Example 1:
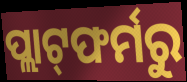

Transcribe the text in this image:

ପ୍ଲାଟ୍‌ଫର୍ମରୁ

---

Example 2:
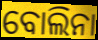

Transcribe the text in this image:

ବୋଲିନା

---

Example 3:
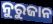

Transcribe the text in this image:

ନୁରୁଜାନ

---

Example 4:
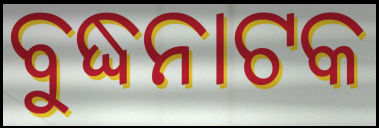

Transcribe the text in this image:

ବୁଦ୍ଧନାଟକ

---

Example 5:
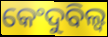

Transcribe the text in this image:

କେଂଦୁବିଲ୍ୱ